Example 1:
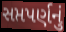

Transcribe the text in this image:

સપ્તપર્ણનું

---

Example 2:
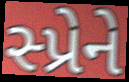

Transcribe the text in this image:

સ્પ્રેને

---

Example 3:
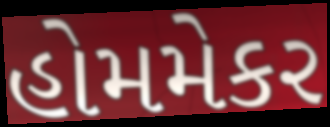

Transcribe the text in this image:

હોમમેકર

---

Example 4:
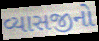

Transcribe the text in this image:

વ્યાસજીનો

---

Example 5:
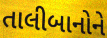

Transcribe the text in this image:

તાલીબાનોને